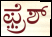
ಫ಼್ರೆಶ್